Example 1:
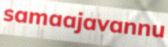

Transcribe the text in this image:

samaajavannu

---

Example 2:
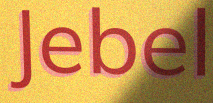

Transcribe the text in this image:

Jebel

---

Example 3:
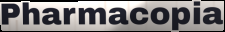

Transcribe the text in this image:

Pharmacopia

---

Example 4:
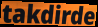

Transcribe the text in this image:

takdirde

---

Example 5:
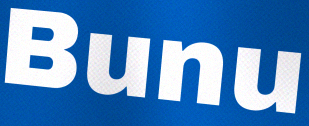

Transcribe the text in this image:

Bunu